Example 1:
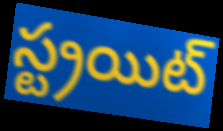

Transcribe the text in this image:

స్ట్రయిట్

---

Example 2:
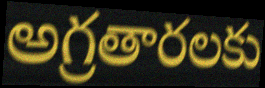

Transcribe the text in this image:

అగ్రతారలకు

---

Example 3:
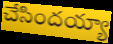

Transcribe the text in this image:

చేసిందయ్యా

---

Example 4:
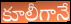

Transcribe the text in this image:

కూలీగానే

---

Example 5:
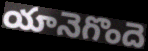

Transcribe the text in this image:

యానెగొందె